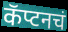
कॅप्टनचं